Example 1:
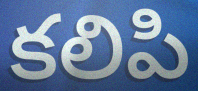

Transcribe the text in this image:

కలిపి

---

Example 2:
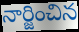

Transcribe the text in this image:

నార్జించిన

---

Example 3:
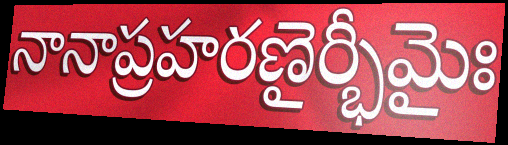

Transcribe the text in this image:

నానాప్రహరణైర్భీమైః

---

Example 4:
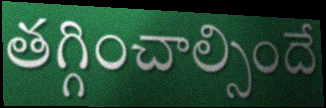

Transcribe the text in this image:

తగ్గించాల్సిందే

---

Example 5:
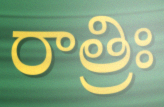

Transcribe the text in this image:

రాత్రిః